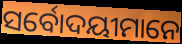
ସର୍ବୋଦୟୀମାନେ